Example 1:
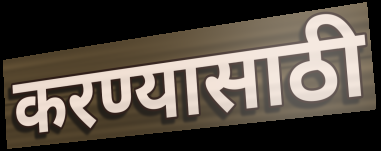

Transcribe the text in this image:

करण्यासाठी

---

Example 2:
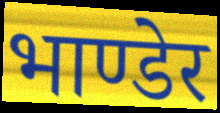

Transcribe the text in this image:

भाण्डेर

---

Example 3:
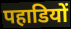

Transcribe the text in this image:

पहाडियों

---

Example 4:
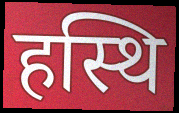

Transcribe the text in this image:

हस्थि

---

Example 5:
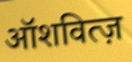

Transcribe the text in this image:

ऑशवित्ज़